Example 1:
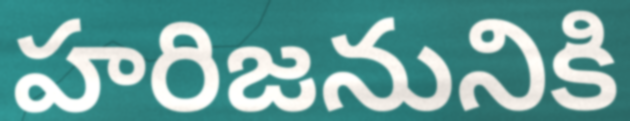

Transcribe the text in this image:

హరిజనునికి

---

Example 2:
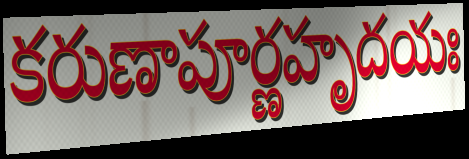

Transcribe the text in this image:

కరుణాపూర్ణహృదయః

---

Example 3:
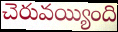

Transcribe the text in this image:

చెరువయ్యింది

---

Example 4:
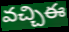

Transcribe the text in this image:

వచ్చిఈ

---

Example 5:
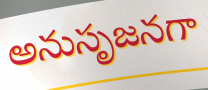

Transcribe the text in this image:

అనుసృజనగా